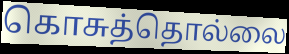
கொசுத்தொல்லை